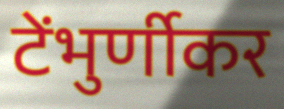
टेंभुर्णीकर